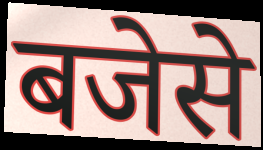
बजेसे